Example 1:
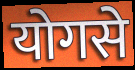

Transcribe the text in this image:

योगसे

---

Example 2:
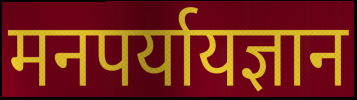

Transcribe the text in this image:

मनपर्यायज्ञान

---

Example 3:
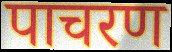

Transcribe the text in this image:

पाचरण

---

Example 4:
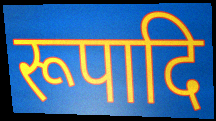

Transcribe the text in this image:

रूपादि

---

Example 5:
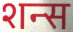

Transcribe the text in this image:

शन्स